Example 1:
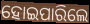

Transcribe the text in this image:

ହୋଇପାରିଲେ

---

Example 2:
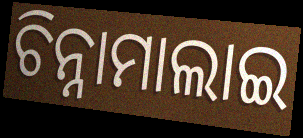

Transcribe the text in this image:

ଚିନ୍ନାମାଲାଇ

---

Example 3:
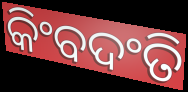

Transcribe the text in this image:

କିଂବଦଂତି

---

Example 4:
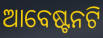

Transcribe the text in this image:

ଆବେଷ୍ଟନଟି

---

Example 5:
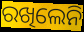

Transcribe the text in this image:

ରଖିଲେନି